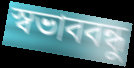
স্বভাববন্ধু